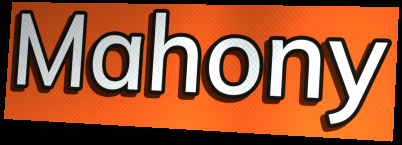
Mahony